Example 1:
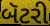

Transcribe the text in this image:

બૅટરી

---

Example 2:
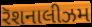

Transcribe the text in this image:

રૅશનાલીઝમ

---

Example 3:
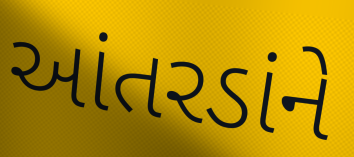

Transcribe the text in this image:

આંતરડાંને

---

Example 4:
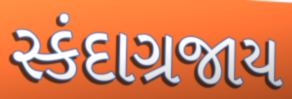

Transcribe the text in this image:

સ્કંદાગ્રજાય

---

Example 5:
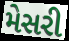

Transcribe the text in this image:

મેસરી